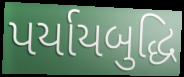
પર્યાયબુદ્ધિ